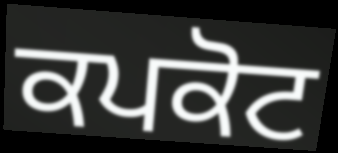
ਕਪਕੋਟ